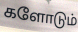
களோடும்